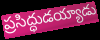
ప్రసిద్ధుడయ్యాడు